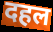
दहल